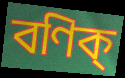
বণিক্